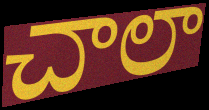
చాలా